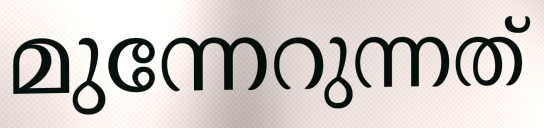
മുന്നേറുന്നത്